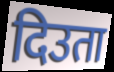
दिउता